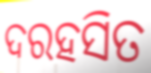
ଦରହସିତ